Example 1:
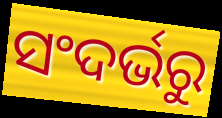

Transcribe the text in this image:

ସଂଦର୍ଭରୁ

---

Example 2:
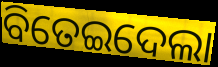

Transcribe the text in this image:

ବିତେଇଦେଲା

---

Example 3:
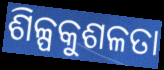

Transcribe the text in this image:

ଶିଳ୍ପକୁଶଳତା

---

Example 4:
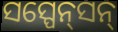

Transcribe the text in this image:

ସସ୍ପେନ୍‌ସନ୍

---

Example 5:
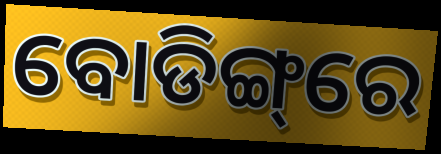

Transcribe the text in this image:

ବୋଡିଙ୍ଗ୍‌ରେ